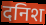
दनिश